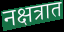
नक्षत्रात